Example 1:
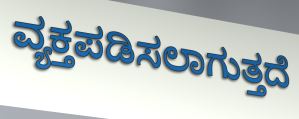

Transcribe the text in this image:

ವ್ಯಕ್ತಪಡಿಸಲಾಗುತ್ತದೆ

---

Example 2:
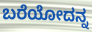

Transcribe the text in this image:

ಬರೆಯೋದನ್ನ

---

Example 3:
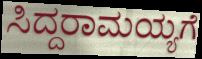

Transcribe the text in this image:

ಸಿದ್ದರಾಮಯ್ಯಗೆ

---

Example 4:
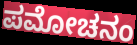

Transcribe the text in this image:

ಪಮೋಚನಂ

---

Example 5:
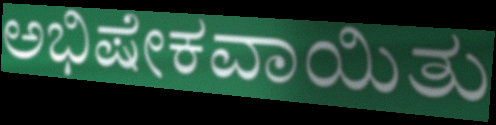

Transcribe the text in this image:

ಅಭಿಷೇಕವಾಯಿತು